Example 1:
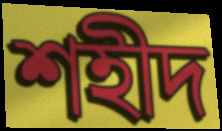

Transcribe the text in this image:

শহীদ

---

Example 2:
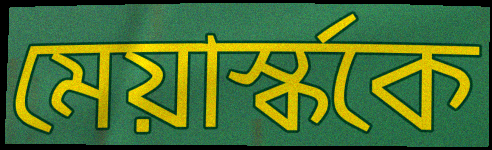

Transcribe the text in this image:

মেয়ার্স্ককে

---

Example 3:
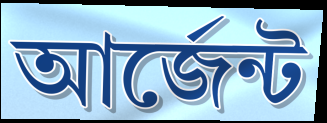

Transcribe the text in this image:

আর্জেন্ট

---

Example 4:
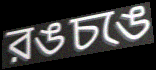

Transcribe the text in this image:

রঙচঙে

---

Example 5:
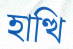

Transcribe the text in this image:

হাত্থি